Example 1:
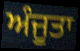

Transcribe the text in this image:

ਅੰਜੂਤਾ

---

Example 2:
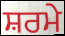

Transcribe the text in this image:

ਸ਼ਰਮੇ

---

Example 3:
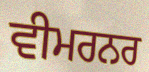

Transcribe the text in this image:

ਵੀਮਰਨਰ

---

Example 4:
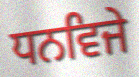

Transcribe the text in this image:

ਧਨਵਿਜੇ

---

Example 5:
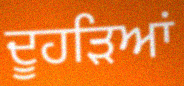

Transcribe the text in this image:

ਦੂਹੜਿਆਂ